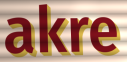
akre